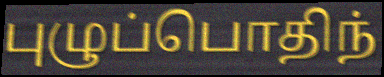
புழுப்பொதிந்